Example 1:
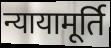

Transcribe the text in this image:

न्यायामूर्ति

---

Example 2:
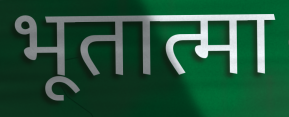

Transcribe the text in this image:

भूतात्मा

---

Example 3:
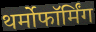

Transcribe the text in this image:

थर्मोफॉर्मिंग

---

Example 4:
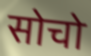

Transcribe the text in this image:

सोचो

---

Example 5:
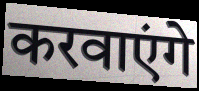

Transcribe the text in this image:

करवाएंगे